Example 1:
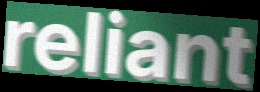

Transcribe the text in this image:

reliant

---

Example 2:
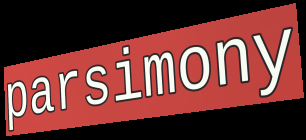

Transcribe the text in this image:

parsimony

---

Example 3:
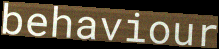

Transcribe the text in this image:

behaviour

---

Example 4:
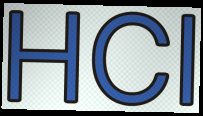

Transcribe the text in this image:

HCl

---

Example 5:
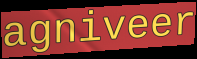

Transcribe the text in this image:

agniveer